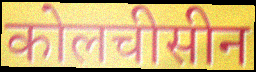
कोलचीसीन